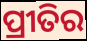
ପ୍ରୀତିର